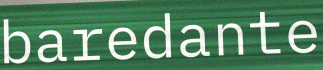
baredante